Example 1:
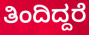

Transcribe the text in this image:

ತಿಂದಿದ್ದರೆ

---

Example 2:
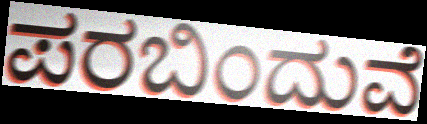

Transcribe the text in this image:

ಪರಬಿಂದುವೆ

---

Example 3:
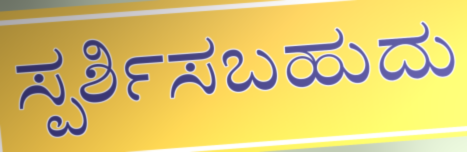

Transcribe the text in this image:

ಸ್ಪರ್ಶಿಸಬಹುದು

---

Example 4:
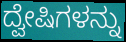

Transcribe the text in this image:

ದ್ವೇಷಿಗಳನ್ನು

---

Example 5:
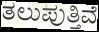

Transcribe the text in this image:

ತಲುಪುತ್ತಿವೆ